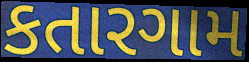
કતારગામ